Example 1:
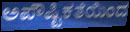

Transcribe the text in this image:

ಅಪೌಷ್ಟಿಕತೆಯಿಂದ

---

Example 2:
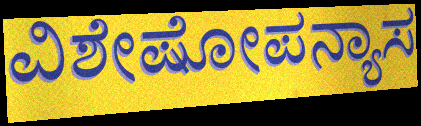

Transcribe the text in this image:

ವಿಶೇಷೋಪನ್ಯಾಸ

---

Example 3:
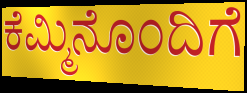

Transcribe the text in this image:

ಕೆಮ್ಮಿನೊಂದಿಗೆ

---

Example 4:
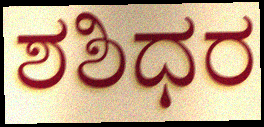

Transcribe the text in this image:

ಶಶಿಧರ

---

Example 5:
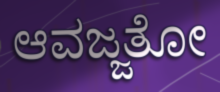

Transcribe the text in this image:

ಆವಜ್ಜತೋ